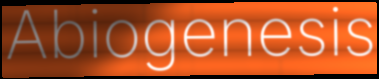
Abiogenesis